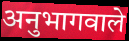
अनुभागवाले